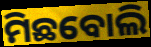
ମିଛବୋଲି